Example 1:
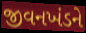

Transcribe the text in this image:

જીવનખંડને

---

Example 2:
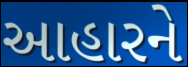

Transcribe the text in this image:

આહારને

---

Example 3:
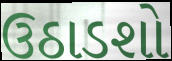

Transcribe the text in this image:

ઉઠાડશો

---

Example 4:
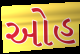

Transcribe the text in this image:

ઓહ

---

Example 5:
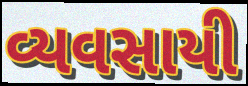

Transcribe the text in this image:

વ્યવસાયી